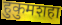
हुकुमशहा